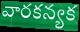
వారకన్యక